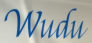
Wudu